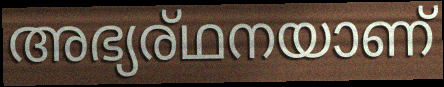
അഭ്യര്ഥനയാണ്